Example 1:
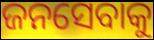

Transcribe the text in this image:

ଜନସେବାକୁ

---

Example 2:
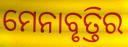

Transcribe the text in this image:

ମେନାବୃତ୍ତିର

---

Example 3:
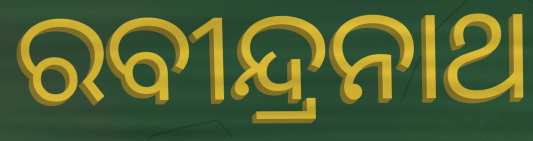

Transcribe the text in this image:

ରବୀନ୍ଦ୍ରନାଥ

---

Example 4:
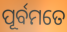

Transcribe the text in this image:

ପୂର୍ବମତେ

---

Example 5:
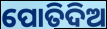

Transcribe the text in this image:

ପୋତିଦିଅ